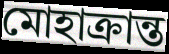
মোহাক্রান্ত